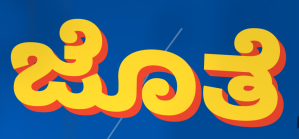
ಜೊತೆ